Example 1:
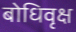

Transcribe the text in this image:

बोधिवृक्ष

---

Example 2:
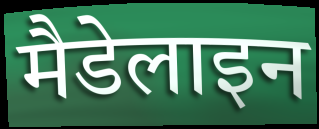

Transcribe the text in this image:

मैडेलाइन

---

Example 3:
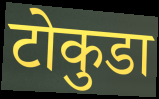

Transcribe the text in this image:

टोकुडा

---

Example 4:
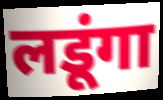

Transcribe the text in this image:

लडूंगा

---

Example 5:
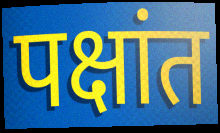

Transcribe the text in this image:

पक्षांत